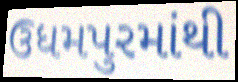
ઉધમપુરમાંથી